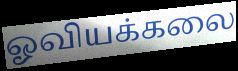
ஓவியக்கலை